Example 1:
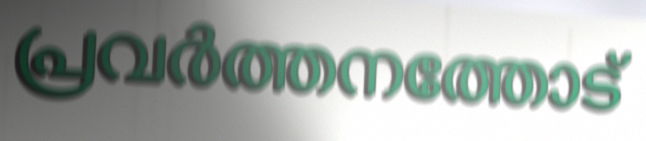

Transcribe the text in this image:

പ്രവർത്തനത്തോട്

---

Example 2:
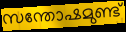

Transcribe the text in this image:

സന്തോഷമുണ്ട്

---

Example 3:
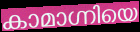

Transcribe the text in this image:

കാമാഗ്നിയെ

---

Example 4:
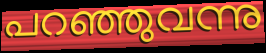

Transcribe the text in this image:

പറഞ്ഞുവന്നു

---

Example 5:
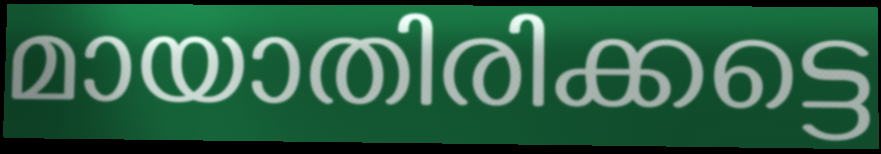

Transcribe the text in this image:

മായാതിരിക്കട്ടെ